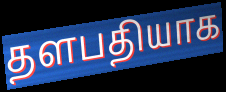
தளபதியாக